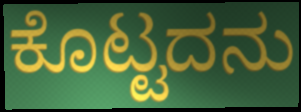
ಕೊಟ್ಟದನು